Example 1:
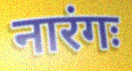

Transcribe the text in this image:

नारंगः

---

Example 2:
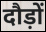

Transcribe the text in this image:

दौड़ों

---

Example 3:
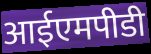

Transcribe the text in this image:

आईएमपीडी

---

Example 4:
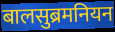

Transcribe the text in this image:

बालसुब्रमनियन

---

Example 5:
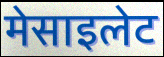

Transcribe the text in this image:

मेसाइलेट